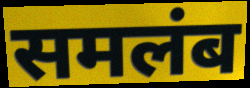
समलंब